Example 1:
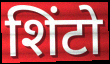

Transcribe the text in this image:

शिंटो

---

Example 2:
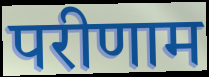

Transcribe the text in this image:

परीणाम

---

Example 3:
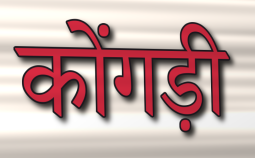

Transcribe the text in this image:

कोंगड़ी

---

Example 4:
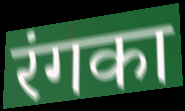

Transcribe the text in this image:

रंगका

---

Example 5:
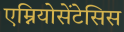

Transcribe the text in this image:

एम्नियोसेंटेसिस